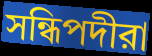
সন্ধিপদীরা